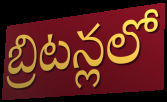
బ్రిటన్లలో